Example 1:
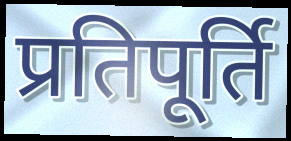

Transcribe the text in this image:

प्रतिपूर्ति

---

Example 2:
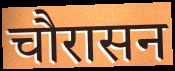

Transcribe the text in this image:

चौरासन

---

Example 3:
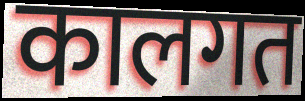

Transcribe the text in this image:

कालगत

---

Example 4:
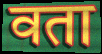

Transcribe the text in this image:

वता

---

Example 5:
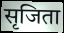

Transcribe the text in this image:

सृजिता